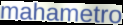
mahametro